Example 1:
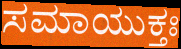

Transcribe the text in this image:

ಸಮಾಯುಕ್ತಃ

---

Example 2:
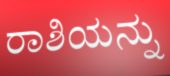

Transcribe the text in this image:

ರಾಶಿಯನ್ನು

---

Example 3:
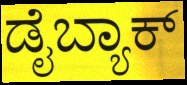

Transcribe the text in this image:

ಡೈಬ್ಯಾಕ್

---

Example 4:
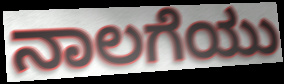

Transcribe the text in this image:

ನಾಲಗೆಯು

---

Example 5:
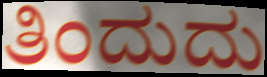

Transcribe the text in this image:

ತಿಂದುದು